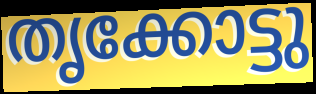
തൃക്കോട്ടു